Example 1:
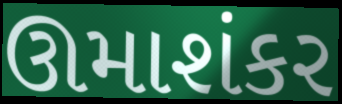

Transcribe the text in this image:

ઊમાશંકર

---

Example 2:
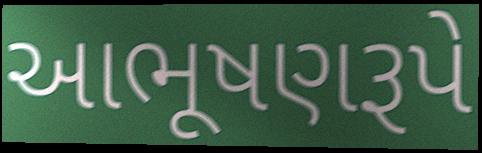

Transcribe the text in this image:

આભૂષણરૂપે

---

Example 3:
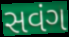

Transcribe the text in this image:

સવંગ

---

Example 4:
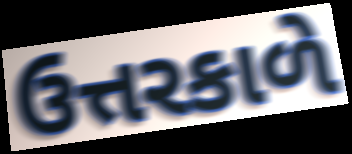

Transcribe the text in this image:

ઉત્તરકાળે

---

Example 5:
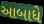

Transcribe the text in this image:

આબાધે